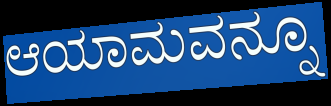
ಆಯಾಮವನ್ನೂ